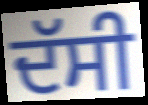
ਦੱਸੀ